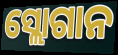
ସ୍ଲୋଗାନ